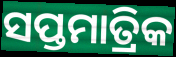
ସପ୍ତମାତ୍ରିକ